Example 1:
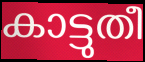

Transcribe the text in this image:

കാട്ടുതീ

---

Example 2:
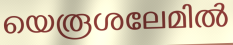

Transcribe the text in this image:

യെരൂശലേമിൽ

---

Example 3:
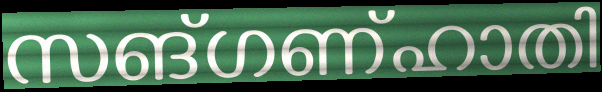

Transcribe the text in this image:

സങ്ഗണ്ഹാതി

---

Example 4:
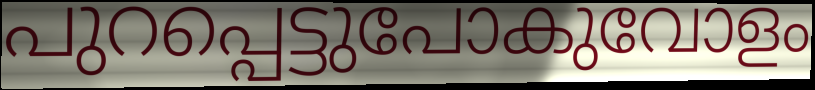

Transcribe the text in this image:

പുറപ്പെട്ടുപോകുവോളം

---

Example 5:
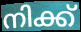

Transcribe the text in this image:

നിക്ക്